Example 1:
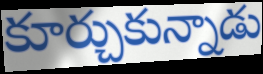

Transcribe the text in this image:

కూర్చుకున్నాడు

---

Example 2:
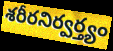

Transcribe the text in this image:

శరీరనిర్వర్త్యం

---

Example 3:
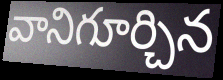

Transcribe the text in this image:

వానిగూర్చిన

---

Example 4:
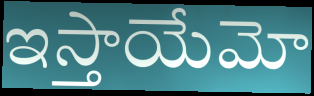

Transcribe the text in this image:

ఇస్తాయేమో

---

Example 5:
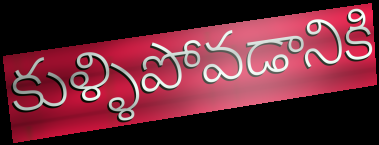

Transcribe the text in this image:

కుళ్ళిపోవడానికి